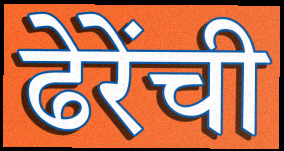
ढेरेंची